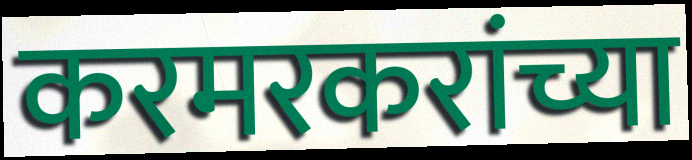
करमरकरांच्या